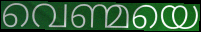
വെണ്മയെ